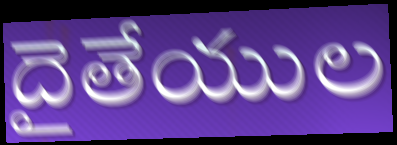
దైతేయుల